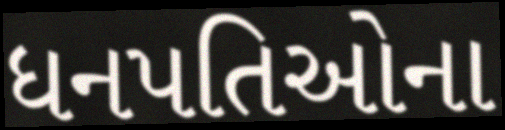
ધનપતિઓના